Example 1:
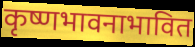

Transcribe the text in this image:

कृष्णभावनाभावित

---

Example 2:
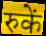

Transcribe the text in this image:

रुकें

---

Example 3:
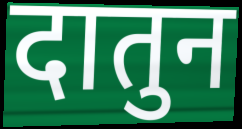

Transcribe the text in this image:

दातुन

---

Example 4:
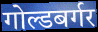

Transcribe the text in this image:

गोल्डबर्गर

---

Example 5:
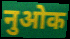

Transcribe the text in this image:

नुओक